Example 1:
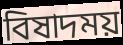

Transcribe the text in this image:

বিষাদময়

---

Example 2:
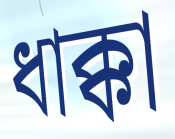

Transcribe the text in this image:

ধাক্কা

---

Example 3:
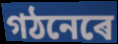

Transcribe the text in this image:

গঠনেৰে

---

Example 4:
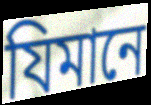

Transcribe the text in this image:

যিমানে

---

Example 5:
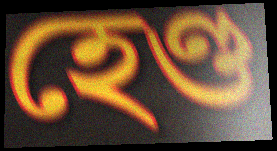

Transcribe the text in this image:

হেণ্ড